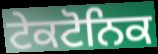
ਟੇਕਟੋਨਿਕ